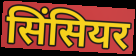
सिंसियर